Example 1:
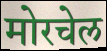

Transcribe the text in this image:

मोरचेल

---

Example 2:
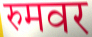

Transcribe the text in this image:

रुमवर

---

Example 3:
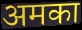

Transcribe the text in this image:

अमका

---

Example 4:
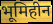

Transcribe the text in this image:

भूमिहीन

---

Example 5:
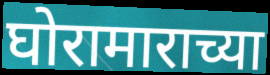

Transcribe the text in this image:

घोरामाराच्या